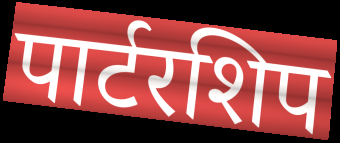
पार्टरशिप